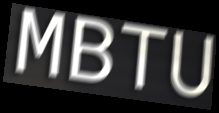
MBTU